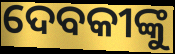
ଦେବକୀଙ୍କୁ